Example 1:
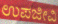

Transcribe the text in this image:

ಉಪಜೀವಿ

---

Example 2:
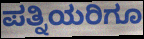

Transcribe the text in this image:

ಪತ್ನಿಯರಿಗೂ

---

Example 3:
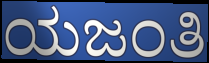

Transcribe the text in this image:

ಯಜಂತಿ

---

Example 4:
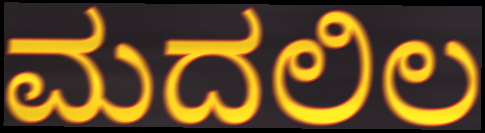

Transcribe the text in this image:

ಮದಲಿಲ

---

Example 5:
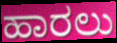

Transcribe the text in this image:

ಹಾರಲು